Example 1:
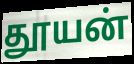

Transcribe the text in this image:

தூயன்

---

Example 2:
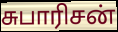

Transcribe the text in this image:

சுபாரிசன்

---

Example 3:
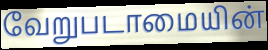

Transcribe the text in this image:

வேறுபடாமையின்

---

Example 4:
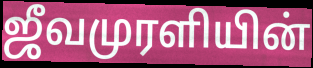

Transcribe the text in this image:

ஜீவமுரளியின்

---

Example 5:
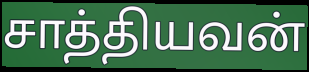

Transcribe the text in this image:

சாத்தியவன்